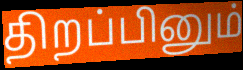
திறப்பினும்